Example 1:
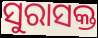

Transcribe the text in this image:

ସୁରାସକ୍ତ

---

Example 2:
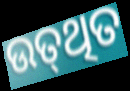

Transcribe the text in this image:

ଉତ୍‍ଥିତ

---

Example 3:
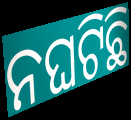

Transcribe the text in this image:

ନଘଟିଛି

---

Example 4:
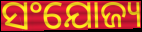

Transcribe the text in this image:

ସଂଯୋଜ୍ୟ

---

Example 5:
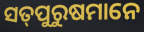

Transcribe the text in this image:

ସତ୍‌ପୁରୁଷମାନେ